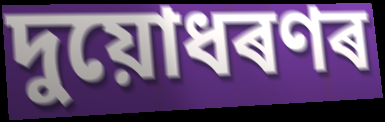
দুয়োধৰণৰ